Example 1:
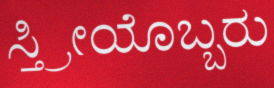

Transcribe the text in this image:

ಸ್ತ್ರೀಯೊಬ್ಬರು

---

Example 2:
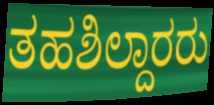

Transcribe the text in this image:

ತಹಶಿಲ್ದಾರರು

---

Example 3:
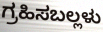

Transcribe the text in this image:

ಗ್ರಹಿಸಬಲ್ಲಳು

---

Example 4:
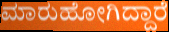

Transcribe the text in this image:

ಮಾರುಹೋಗಿದ್ದಾರೆ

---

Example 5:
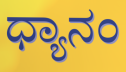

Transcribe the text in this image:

ಧ್ಯಾನಂ